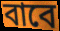
বাবে